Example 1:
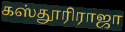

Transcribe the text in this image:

கஸ்தூரிராஜா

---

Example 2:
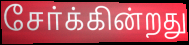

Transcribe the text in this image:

சேர்க்கின்றது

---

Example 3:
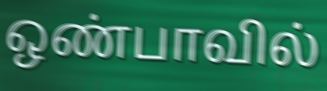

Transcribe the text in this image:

ஒண்பாவில்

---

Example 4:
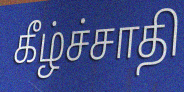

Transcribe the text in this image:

கீழ்ச்சாதி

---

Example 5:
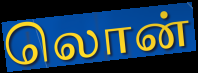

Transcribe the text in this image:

லொன்